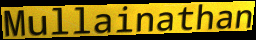
Mullainathan